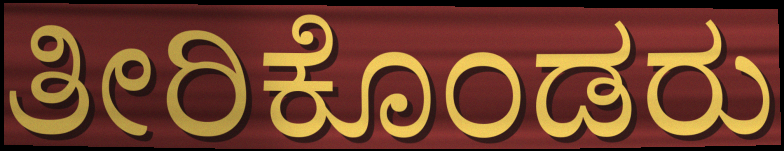
ತೀರಿಕೊಂಡರು